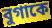
বুগাকে